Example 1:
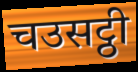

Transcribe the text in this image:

चउसट्ठी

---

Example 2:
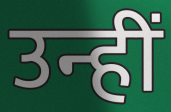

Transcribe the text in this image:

उन्हीं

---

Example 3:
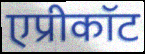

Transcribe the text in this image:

एप्रीकॉट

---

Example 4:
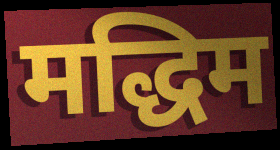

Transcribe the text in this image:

मद्धिम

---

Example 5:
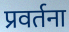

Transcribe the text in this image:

प्रवर्तना